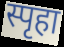
स्पृहा